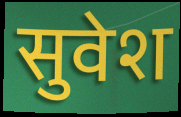
सुवेश